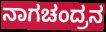
ನಾಗಚಂದ್ರನ